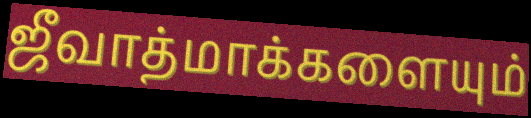
ஜீவாத்மாக்களையும்